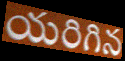
యరిగిన